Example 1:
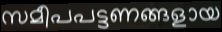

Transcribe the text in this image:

സമീപപട്ടണങ്ങളായ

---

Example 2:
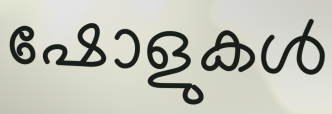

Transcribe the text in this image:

ഷോളുകൾ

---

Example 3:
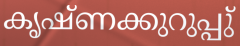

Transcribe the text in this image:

കൃഷ്ണക്കുറുപ്പു്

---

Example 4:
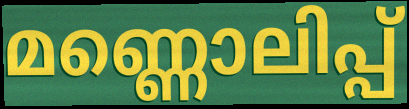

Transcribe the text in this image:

മണ്ണൊലിപ്പ്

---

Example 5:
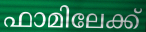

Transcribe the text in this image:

ഫാമിലേക്ക്